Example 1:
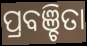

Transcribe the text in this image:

ପ୍ରବଞ୍ଚିତା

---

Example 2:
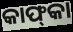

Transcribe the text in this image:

କାଫ୍‌କା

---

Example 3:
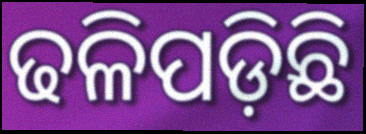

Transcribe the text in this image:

ଢଳିପଡ଼ିଛି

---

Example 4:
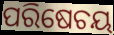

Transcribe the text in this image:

ପରିଷେଚୟ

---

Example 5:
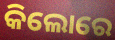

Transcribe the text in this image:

କିଲୋରେ